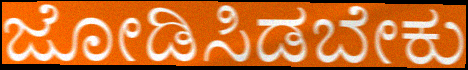
ಜೋಡಿಸಿಡಬೇಕು